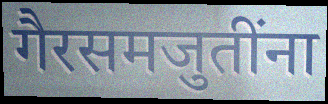
गैरसमजुतींना